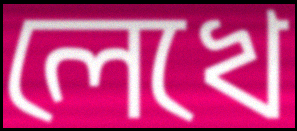
লেখে